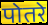
पोतरे